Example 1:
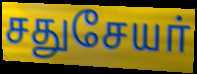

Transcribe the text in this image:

சதுசேயர்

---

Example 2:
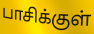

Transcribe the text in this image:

பாசிக்குள்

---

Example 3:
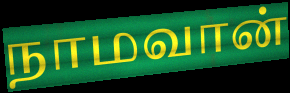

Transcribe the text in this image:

நாமவான்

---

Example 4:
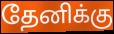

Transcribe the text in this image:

தேனிக்கு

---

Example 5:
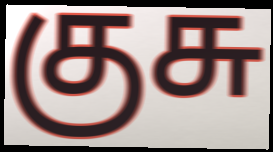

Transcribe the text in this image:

குசு